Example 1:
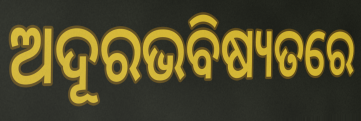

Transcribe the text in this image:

ଅଦୂରଭବିଷ୍ୟତରେ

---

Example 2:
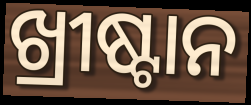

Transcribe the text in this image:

ଖ୍ରୀଷ୍ଟାନ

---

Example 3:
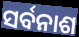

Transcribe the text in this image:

ସର୍ବନାଶ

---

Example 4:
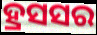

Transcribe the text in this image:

ହ୍ରସସର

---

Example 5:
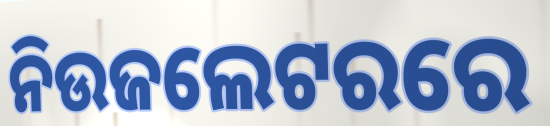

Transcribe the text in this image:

ନିଉଜଲେଟରରେ